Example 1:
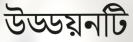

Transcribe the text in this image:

উড্ডয়নটি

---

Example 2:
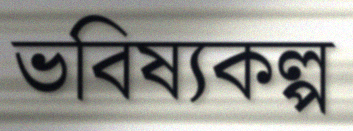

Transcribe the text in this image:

ভবিষ্যকল্প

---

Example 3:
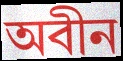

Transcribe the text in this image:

অবীন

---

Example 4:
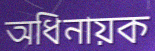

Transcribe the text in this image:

অধিনায়ক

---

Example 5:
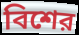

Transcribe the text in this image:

বিশের